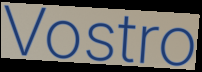
Vostro